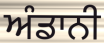
ਅੰਡਾਨੀ